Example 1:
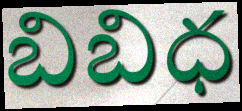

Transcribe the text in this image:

బిబిధ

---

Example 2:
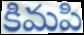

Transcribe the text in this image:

కిమపి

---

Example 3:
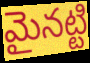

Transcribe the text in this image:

మైనట్టి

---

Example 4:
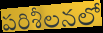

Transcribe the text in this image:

పరిశీలనలో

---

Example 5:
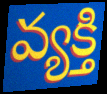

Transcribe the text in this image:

వ్యక్తి